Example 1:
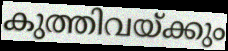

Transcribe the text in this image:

കുത്തിവയ്ക്കും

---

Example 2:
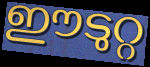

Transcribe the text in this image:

ഈടുറ്റ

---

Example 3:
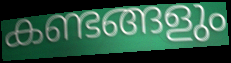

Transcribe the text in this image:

കണ്ടങ്ങളും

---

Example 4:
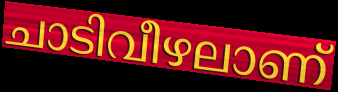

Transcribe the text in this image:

ചാടിവീഴലാണ്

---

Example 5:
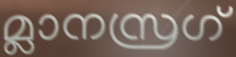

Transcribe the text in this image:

മ്ലാനസ്രഗ്